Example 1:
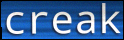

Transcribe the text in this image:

creak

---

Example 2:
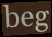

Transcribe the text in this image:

beg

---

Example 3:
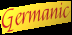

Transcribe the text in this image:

Germanic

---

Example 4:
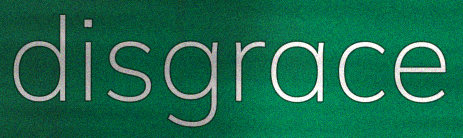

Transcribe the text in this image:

disgrace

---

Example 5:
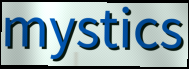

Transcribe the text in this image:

mystics